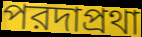
পরদাপ্রথা